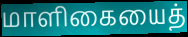
மாளிகையைத்